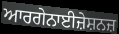
ਆਰਗੇਨਾਈਜ਼ੇਸ਼ਨਜ਼